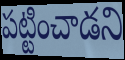
పట్టించాడని